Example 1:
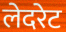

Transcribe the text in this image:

लेदरेट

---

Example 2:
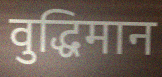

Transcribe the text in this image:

वुद्धिमान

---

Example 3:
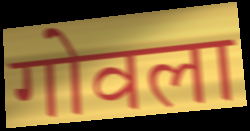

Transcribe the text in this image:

गोवला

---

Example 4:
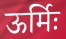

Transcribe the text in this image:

ऊर्मिः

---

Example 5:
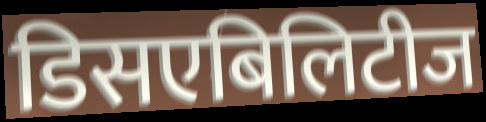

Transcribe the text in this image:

डिसएबिलिटीज